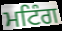
ਮਟਿੰਗ